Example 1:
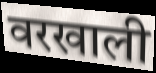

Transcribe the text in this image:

वरखाली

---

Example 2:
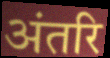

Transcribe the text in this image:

अंतरि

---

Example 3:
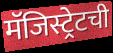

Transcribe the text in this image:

मॅजिस्ट्रेटची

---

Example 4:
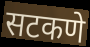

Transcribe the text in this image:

सटकणे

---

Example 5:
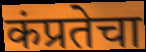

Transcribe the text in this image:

कंप्रतेचा